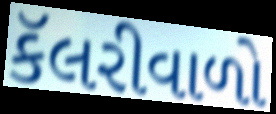
કૅલરીવાળો